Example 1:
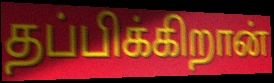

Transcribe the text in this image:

தப்பிக்கிறான்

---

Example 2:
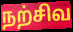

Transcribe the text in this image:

நற்சிவ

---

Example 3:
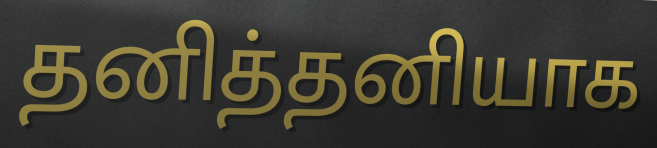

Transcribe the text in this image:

தனித்தனியாக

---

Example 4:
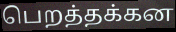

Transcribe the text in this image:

பெறத்தக்கன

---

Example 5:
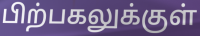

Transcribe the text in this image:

பிற்பகலுக்குள்